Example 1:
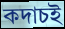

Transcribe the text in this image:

কদাচই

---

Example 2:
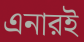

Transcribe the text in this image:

এনারই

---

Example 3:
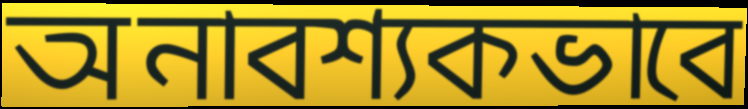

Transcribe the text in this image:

অনাবশ্যকভাবে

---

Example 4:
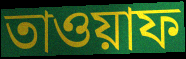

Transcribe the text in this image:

তাওয়াফ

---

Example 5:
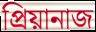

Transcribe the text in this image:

প্রিয়ানাজ